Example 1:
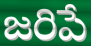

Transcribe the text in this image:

జరిపే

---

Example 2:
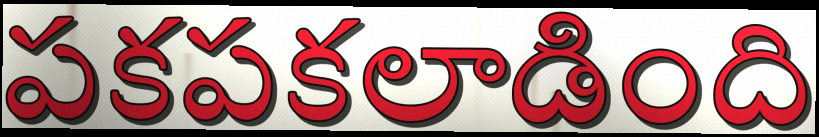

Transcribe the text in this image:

పకపకలాడింది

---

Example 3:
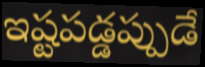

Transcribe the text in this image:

ఇష్టపడ్డప్పుడే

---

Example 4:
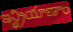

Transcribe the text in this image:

ఇన్థ్రియాణాం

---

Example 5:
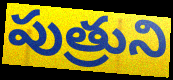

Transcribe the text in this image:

పుత్రుని